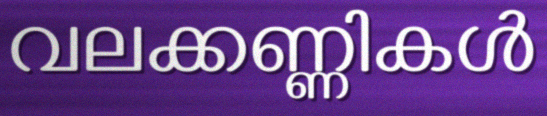
വലക്കണ്ണികൾ